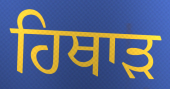
ਹਿਥਾੜ